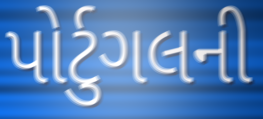
પોર્ટુગલની